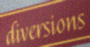
diversions